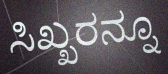
ಸಿಖ್ಖರನ್ನೂ